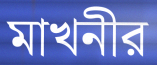
মাখনীর